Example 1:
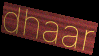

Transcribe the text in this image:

dhaar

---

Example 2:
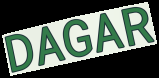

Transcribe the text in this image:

DAGAR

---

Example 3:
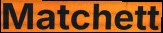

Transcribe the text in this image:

Matchett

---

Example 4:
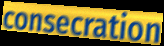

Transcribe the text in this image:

consecration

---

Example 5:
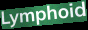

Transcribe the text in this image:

Lymphoid